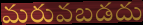
మరువబడదు